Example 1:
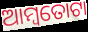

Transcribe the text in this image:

ଆମ୍ବତୋଟା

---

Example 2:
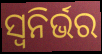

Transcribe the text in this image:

ସ୍ୱନିର୍ଭର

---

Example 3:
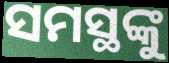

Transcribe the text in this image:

ସମସ୍ଥଙ୍କୁ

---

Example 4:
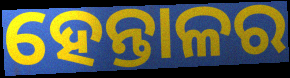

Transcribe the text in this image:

ହେନ୍ତାଳର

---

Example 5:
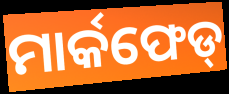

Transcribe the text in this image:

ମାର୍କଫେଡ୍